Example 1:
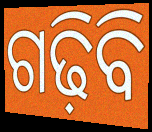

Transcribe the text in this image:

ଗଢ଼ିବି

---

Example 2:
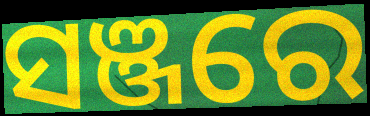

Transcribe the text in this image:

ସଞ୍ଜରେ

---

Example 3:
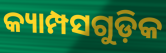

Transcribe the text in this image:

କ୍ୟାମ୍ପସଗୁଡ଼ିକ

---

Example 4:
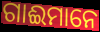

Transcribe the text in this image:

ଗାଈମାନେ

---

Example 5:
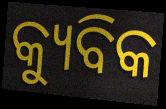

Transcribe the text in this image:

କ୍ୟୁବିକ